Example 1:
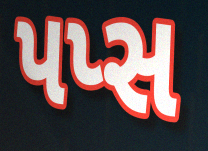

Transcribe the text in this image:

પપ્સ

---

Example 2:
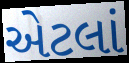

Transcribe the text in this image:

એટલાં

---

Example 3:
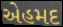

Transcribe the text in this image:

એહમદ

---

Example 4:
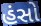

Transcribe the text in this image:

હંસો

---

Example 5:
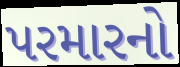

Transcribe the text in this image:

પરમારનો